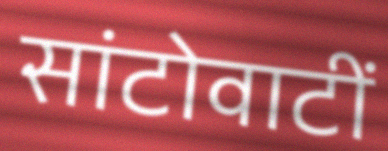
सांटोवाटीं